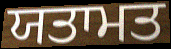
ਯਤਾਮਤ